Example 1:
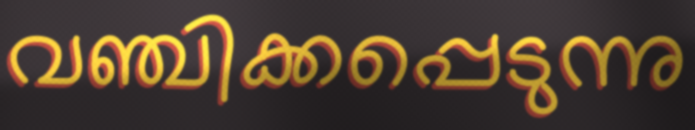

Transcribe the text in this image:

വഞ്ചിക്കപ്പെടുന്നു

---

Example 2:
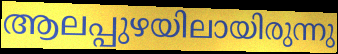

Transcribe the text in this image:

ആലപ്പുഴയിലായിരുന്നു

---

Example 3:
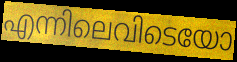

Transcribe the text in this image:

എന്നിലെവിടെയോ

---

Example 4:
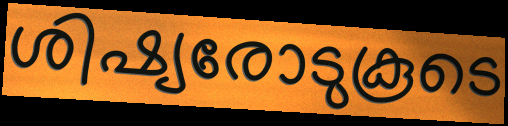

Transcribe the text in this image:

ശിഷ്യരോടുകൂടെ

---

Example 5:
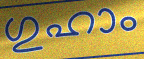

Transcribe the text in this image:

ഗുഹാം